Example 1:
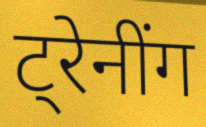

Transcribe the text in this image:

ट्रेनींग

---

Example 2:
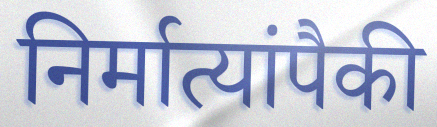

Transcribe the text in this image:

निर्मात्यांपैकी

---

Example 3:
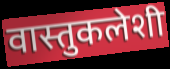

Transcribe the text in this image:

वास्तुकलेशी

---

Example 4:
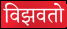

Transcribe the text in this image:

विझवतो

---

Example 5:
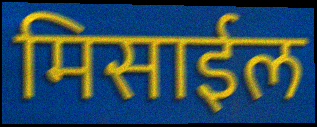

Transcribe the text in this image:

मिसाईल